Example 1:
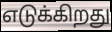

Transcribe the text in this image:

எடுக்கிறது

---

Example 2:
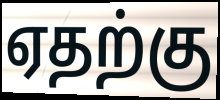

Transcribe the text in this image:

ஏதற்கு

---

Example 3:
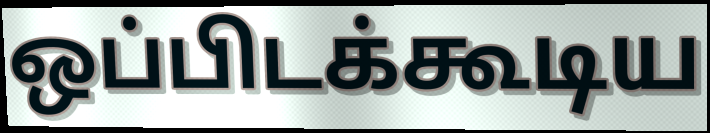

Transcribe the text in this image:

ஒப்பிடக்கூடிய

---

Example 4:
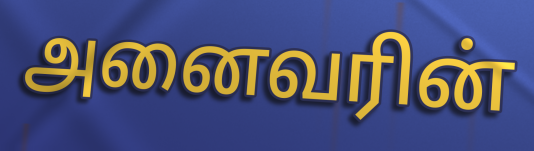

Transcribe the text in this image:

அனைவரின்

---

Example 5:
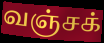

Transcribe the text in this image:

வஞ்சக்